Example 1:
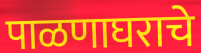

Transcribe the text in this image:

पाळणाघराचे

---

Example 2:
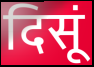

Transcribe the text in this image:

दिसूं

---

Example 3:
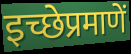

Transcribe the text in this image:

इच्छेप्रमाणें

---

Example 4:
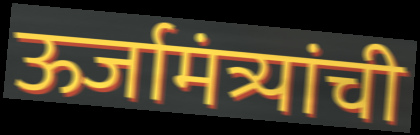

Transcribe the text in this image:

ऊर्जामंत्र्यांची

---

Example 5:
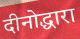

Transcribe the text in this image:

दीनोद्धारा